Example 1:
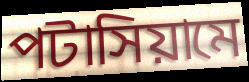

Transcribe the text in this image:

পটাসিয়ামে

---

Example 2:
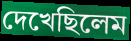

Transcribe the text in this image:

দেখেছিলেম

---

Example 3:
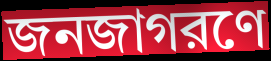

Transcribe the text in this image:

জনজাগরণে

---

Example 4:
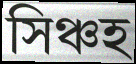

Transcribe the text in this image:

সিঞ্চহ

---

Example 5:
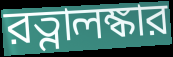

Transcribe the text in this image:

রত্নালঙ্কার